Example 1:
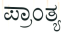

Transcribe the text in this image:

ಪ್ರಾಂತ್ಯ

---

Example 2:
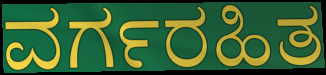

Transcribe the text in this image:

ವರ್ಗರಹಿತ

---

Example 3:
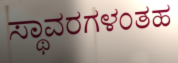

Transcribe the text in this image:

ಸ್ಥಾವರಗಳಂತಹ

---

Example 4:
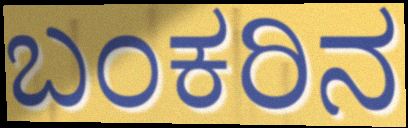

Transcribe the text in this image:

ಬಂಕರಿನ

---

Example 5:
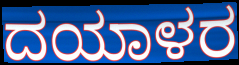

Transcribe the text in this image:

ದಯಾಳರ